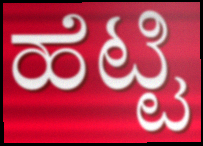
ಹೆಟ್ಟಿ